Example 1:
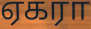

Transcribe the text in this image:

ஏகரா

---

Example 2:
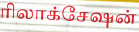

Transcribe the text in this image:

ரிலாக்சேஷன்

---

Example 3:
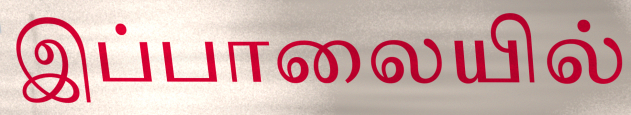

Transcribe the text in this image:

இப்பாலையில்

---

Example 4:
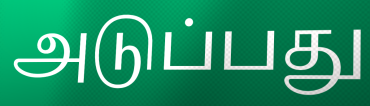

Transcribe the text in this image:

அடுப்பது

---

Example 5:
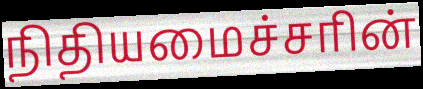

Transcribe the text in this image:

நிதியமைச்சரின்